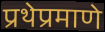
प्रथेप्रमाणे